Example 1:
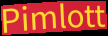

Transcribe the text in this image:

Pimlott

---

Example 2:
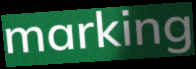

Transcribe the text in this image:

marking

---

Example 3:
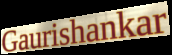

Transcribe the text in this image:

Gaurishankar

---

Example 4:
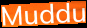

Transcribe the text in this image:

Muddu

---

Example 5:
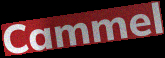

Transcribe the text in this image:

Cammel